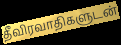
தீவிரவாதிகளுடன்